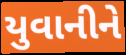
યુવાનીને